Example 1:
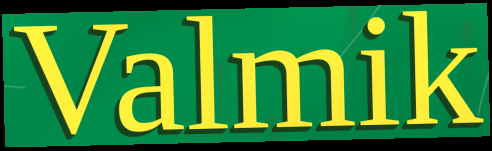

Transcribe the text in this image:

Valmik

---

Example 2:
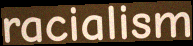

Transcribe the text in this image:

racialism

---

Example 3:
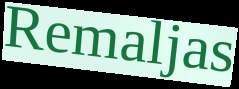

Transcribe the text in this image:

Remaljas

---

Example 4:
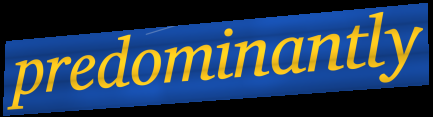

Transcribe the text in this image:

predominantly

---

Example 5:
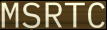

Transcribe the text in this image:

MSRTC